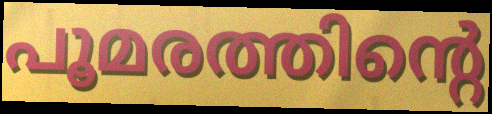
പൂമരത്തിന്റെ